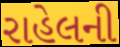
રાહેલની